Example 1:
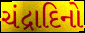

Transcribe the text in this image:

ચંદ્રાદિનો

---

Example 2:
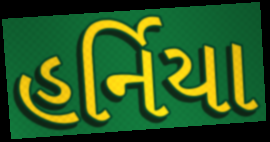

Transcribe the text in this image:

હર્નિયા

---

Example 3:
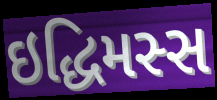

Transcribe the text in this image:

ઇદ્ધિમસ્સ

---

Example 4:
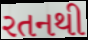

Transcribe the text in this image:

રતનથી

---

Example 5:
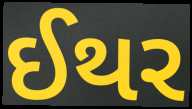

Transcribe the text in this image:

ઈથર